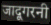
जादूगरनी